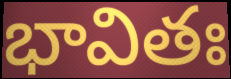
భావితః